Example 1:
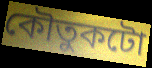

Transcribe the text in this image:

কৌতুকটো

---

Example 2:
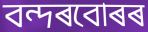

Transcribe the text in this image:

বন্দৰবোৰৰ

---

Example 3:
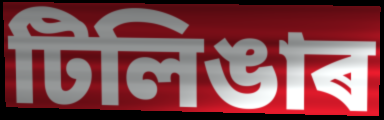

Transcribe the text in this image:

টিলিঙাৰ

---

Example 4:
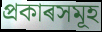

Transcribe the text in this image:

প্ৰকাৰসমূহ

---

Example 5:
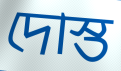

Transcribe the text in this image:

দোস্ত